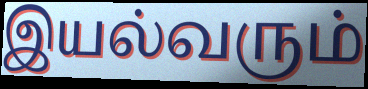
இயல்வரும்